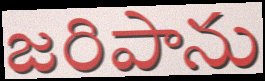
జరిపాను